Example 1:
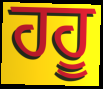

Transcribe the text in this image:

ਹਹੂ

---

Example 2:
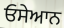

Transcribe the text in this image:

ਓਸੇਆਨ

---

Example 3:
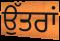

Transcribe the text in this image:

ਉੱਤਰਾਂ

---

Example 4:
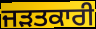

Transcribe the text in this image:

ਜੜਤਕਾਰੀ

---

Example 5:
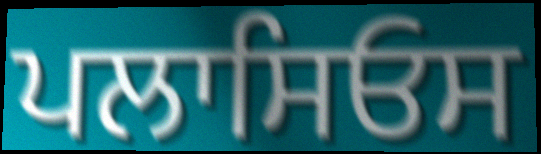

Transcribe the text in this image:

ਪਲਾਸਿਓਸ